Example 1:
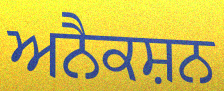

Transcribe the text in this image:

ਅਨੈਕਸ਼ਨ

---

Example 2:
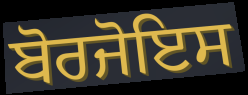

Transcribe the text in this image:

ਬੋਰਜੋਇਸ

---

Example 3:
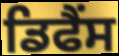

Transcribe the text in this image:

ਡਿਫੈਂਸ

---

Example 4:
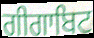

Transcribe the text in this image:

ਗੀਗਾਬਿਟ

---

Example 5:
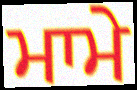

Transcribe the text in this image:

ਮਾਮੇ